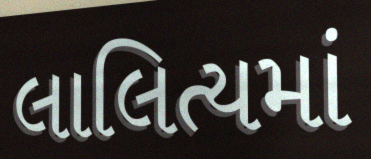
લાલિત્યમાં